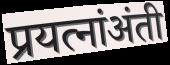
प्रयत्नांअंती